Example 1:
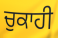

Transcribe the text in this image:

ਚੁਕਾਹੀ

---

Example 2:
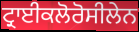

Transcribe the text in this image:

ਟ੍ਰਾਈਕਲੋਰੋਸੀਲੇਨ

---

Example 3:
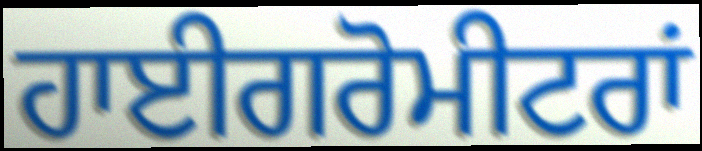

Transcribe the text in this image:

ਹਾਈਗਰੋਮੀਟਰਾਂ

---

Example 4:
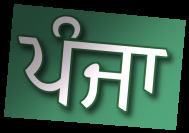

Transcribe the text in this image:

ਪੰਜਾ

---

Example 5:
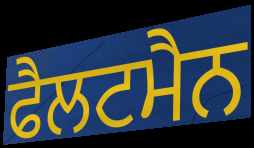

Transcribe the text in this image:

ਫੈਲਟਮੈਨ